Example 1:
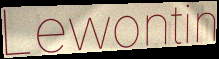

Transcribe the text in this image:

Lewontin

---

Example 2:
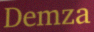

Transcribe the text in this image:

Demza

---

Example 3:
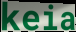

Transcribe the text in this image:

keia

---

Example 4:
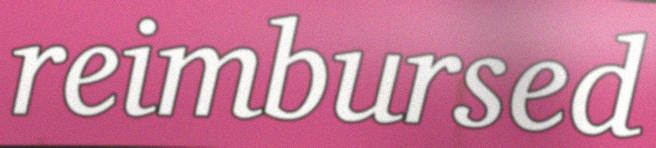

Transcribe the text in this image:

reimbursed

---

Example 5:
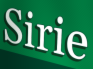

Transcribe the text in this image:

Sirie